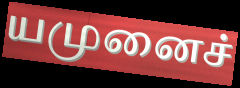
யமுனைச்